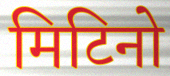
मिटिनो